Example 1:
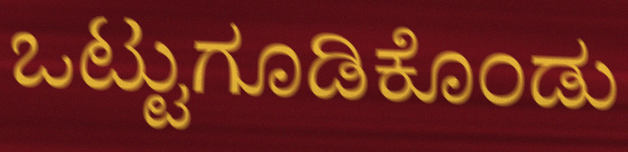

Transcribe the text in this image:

ಒಟ್ಟುಗೂಡಿಕೊಂಡು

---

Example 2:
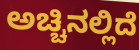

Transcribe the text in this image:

ಅಚ್ಚಿನಲ್ಲಿದೆ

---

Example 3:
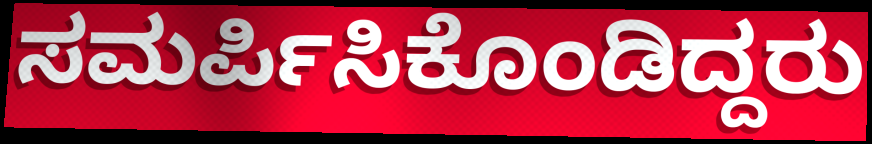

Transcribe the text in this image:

ಸಮರ್ಪಿಸಿಕೊಂಡಿದ್ದರು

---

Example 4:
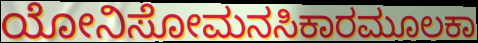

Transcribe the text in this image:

ಯೋನಿಸೋಮನಸಿಕಾರಮೂಲಕಾ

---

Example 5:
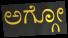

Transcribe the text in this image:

ಅಗ್ಗೋ